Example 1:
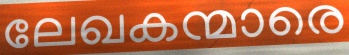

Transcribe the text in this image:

ലേഖകന്മാരെ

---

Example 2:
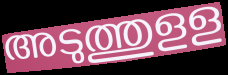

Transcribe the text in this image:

അടുത്തുളള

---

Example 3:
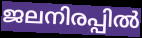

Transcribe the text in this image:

ജലനിരപ്പിൽ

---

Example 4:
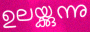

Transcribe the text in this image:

ഉലയ്ക്കുന്നു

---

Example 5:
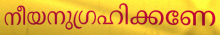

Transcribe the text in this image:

നീയനുഗ്രഹിക്കണേ